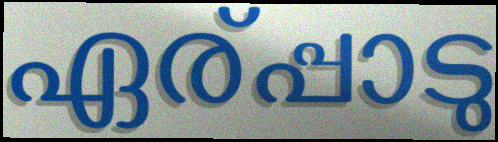
ഏര്പ്പാടു